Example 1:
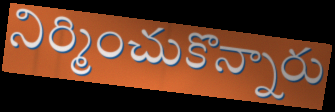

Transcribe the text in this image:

నిర్మించుకొన్నారు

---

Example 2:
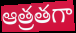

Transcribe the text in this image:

ఆత్రతగా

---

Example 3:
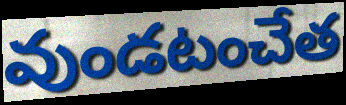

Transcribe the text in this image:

వుండటంచేత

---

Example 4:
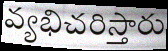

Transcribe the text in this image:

వ్యభిచరిస్తారు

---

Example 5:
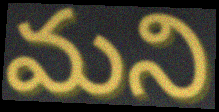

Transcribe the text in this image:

మని